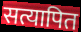
सत्यापित